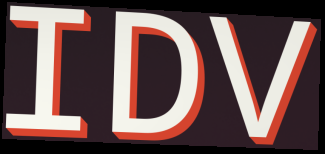
IDV